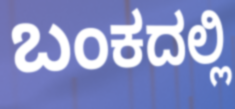
ಬಂಕದಲ್ಲಿ